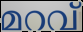
മറവ്